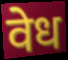
वेध